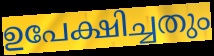
ഉപേക്ഷിച്ചതും